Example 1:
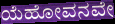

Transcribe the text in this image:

ಯೆಹೋವನವೇ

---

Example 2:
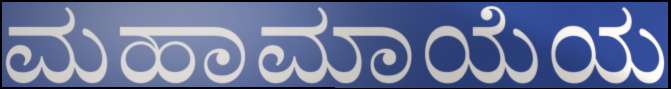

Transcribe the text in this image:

ಮಹಾಮಾಯೆಯ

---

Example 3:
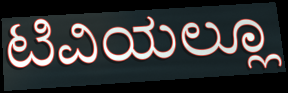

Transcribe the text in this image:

ಟಿವಿಯಲ್ಲೂ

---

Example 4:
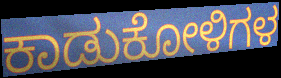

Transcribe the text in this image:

ಕಾಡುಕೋಳಿಗಳ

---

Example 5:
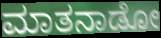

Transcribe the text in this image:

ಮಾತನಾಡೋ